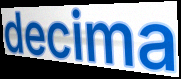
decima